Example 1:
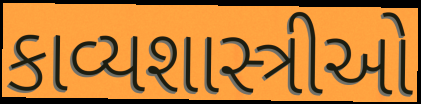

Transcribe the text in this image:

કાવ્યશાસ્ત્રીઓ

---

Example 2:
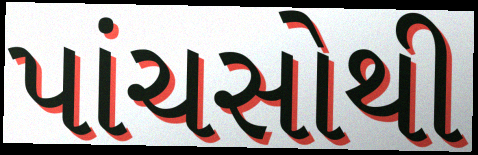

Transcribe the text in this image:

પાંચસોથી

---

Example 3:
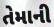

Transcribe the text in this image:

તેમાની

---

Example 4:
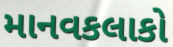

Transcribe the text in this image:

માનવકલાકો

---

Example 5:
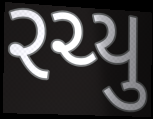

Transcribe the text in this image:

રચ્યુ